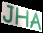
JHA